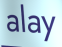
alay